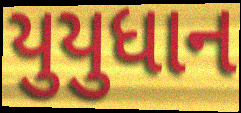
યુયુધાન